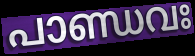
പാണ്ഡവഃ